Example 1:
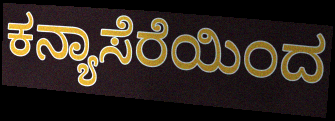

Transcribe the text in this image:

ಕನ್ಯಾಸೆರೆಯಿಂದ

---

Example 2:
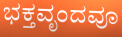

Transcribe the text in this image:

ಭಕ್ತವೃಂದವೂ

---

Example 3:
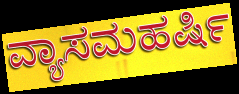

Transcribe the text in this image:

ವ್ಯಾಸಮಹರ್ಷಿ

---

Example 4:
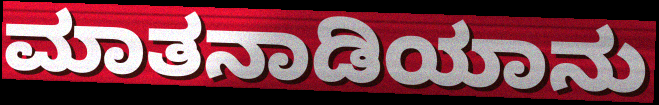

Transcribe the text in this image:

ಮಾತನಾಡಿಯಾನು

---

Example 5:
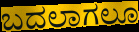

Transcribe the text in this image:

ಬದಲಾಗಲೂ